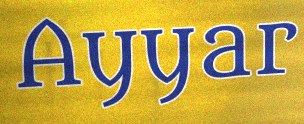
Ayyar